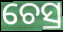
ଚେସ୍ର